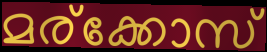
മര്ക്കോസ്